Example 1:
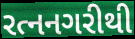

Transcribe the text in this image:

રત્નનગરીથી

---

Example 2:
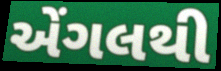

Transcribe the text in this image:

એંગલથી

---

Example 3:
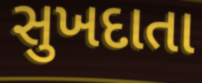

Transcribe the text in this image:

સુખદાતા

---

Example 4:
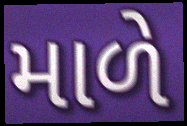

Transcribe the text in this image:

માળે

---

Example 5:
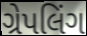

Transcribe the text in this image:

ગ્રેપલિંગ